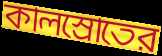
কালস্রোতের